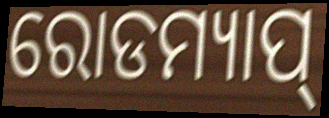
ରୋଡମ୍ୟାପ୍